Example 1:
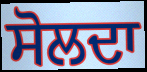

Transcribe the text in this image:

ਸੋਲਦਾ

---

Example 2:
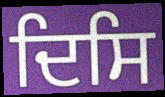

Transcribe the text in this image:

ਦਿਸਿ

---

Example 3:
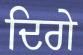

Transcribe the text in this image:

ਦਿਗੇ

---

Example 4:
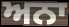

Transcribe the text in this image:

ਅਨਾ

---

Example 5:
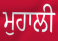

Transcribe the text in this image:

ਮੁਹਾਲੀ